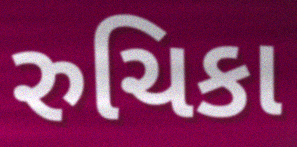
રુચિકા